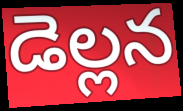
డెల్లన